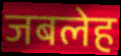
जबलेह